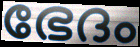
ഭേദം